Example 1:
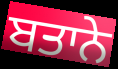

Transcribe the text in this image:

ਬਤਾਨੇ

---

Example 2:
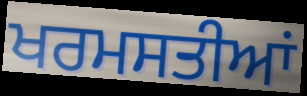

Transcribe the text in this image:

ਖਰਮਸਤੀਆਂ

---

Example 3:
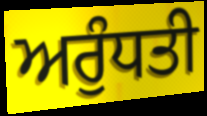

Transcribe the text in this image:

ਅਰੁੰਧਤੀ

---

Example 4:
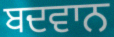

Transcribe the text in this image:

ਬਦਵਾਨ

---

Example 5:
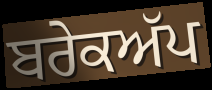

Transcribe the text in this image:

ਬਰੇਕਅੱਪ